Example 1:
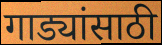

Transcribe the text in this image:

गाड्यांसाठी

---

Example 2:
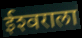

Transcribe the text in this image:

ईश्वराला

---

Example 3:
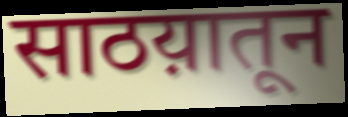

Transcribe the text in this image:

साठय़ातून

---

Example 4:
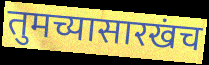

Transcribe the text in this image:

तुमच्यासारखंच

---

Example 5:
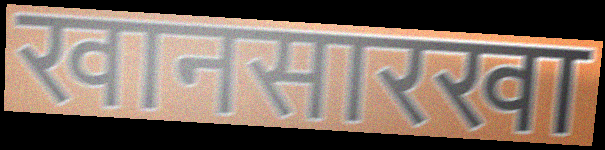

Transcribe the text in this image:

खानसारखा